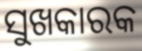
ସୁଖକାରକ